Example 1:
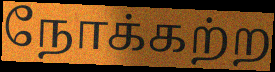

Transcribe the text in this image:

நோக்கற்ற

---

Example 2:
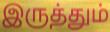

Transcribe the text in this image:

இருத்தும்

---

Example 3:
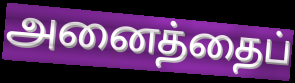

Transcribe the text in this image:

அனைத்தைப்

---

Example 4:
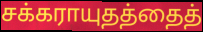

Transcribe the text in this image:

சக்கராயுதத்தைத்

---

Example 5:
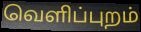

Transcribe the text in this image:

வெளிப்புறம்